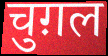
चुग़ल